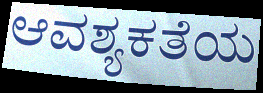
ಆವಶ್ಯಕತೆಯ